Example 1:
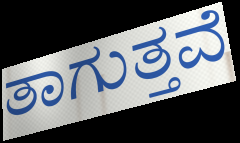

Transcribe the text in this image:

ತಾಗುತ್ತವೆ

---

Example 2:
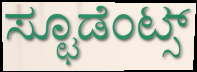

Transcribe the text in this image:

ಸ್ಟೂಡೆಂಟ್ಸ್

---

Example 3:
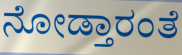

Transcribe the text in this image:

ನೋಡ್ತಾರಂತೆ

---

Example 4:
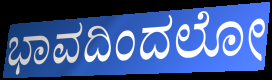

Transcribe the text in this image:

ಭಾವದಿಂದಲೋ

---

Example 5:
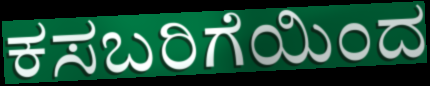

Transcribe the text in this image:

ಕಸಬರಿಗೆಯಿಂದ